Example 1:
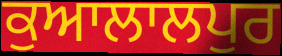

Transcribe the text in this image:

ਕੁਆਲਾਲਪੁਰ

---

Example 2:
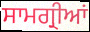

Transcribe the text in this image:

ਸਾਮਗ੍ਰੀਆਂ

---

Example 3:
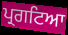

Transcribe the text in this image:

ਪ੍ਰਗਟਿਆ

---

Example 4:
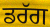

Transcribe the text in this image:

ਡਰੱਗ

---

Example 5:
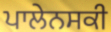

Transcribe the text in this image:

ਪਾਲੇਨਸਕੀ